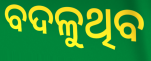
ବଦଳୁଥିବ